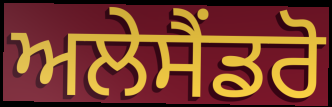
ਅਲੇਸੈਂਡਰੋ